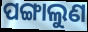
ପଙ୍ଗାଲୁଣ